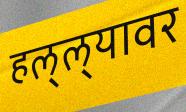
हल्ल्यावर